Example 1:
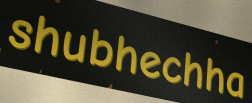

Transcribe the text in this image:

shubhechha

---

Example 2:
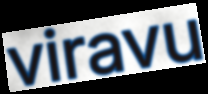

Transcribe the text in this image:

viravu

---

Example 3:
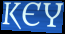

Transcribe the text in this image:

KEY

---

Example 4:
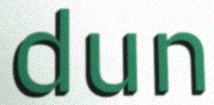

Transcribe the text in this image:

dun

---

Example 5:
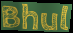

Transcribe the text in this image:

Bhul